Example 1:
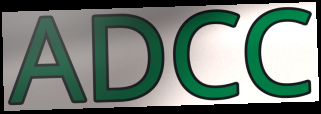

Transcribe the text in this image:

ADCC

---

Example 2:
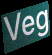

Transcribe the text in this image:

Veg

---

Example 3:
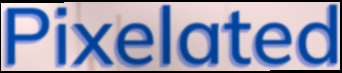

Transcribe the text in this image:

Pixelated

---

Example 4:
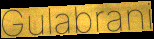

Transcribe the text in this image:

Gulabrani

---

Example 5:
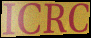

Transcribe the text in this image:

ICRC